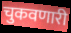
चुकवणारी